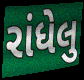
રાંધેલુ